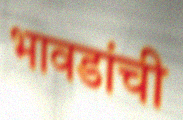
भावडांची